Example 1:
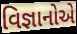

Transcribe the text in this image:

વિજ્ઞાનોએ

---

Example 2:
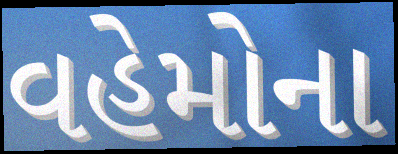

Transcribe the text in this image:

વહેમોના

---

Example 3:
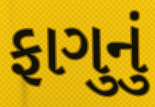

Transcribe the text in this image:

ફાગુનું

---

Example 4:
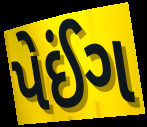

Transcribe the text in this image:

પેઈંગ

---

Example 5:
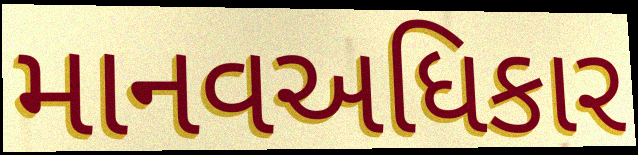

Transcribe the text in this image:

માનવઅધિકાર